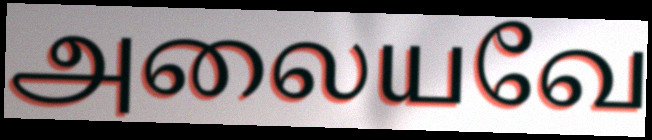
அலையவே